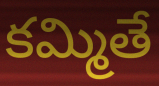
కమ్మితే